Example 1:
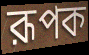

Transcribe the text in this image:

রূপক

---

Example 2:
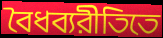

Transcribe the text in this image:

বৈধব্যরীতিতে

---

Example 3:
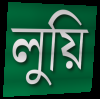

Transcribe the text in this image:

লুয়ি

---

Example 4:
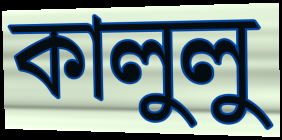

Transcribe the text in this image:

কালুলু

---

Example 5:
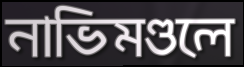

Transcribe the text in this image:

নাভিমণ্ডলে